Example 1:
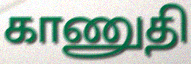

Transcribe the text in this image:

காணுதி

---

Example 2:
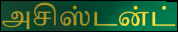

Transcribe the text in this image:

அசிஸ்டன்ட்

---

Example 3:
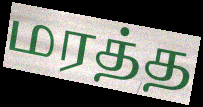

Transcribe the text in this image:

மரத்த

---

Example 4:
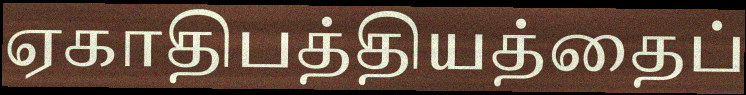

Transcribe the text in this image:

ஏகாதிபத்தியத்தைப்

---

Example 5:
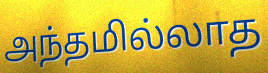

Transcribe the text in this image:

அந்தமில்லாத